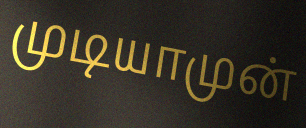
முடியாமுன்